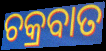
ଚକ୍ରବାତ